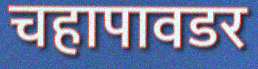
चहापावडर